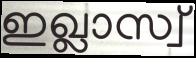
ഇഖ്ലാസ്വ്